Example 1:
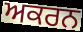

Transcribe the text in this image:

ਅਕਰਨ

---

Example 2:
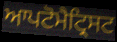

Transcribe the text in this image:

ਆਪਟੋਮੈਟ੍ਰਿਸਟ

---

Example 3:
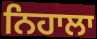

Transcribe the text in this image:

ਨਿਹਾਲਾ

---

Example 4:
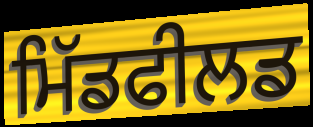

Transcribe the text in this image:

ਮਿੱਡਫੀਲਡ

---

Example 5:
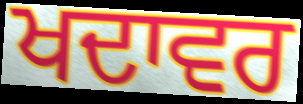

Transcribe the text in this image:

ਖਦਾਵਰ